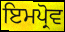
ਇਮਪ੍ਰੋਵ